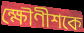
ক্ষৌণীশকে